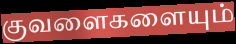
குவளைகளையும்